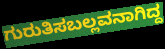
ಗುರುತಿಸಬಲ್ಲವನಾಗಿದ್ದ